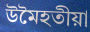
উমৈহতীয়া